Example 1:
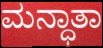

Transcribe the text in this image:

ಮನ್ಧಾತಾ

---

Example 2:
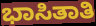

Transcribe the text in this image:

ಭಾಸಿತಾತಿ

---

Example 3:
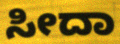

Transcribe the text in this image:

ಸೀದಾ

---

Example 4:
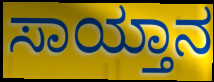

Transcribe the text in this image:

ಸಾಯ್ತಾನ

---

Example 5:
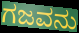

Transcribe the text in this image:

ಗಜವನು